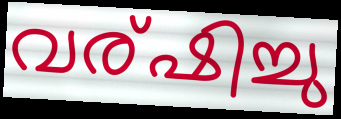
വര്ഷിച്ചു